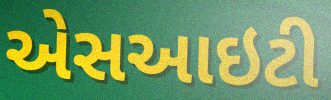
એસઆઇટી